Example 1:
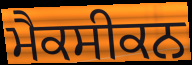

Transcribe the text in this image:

ਮੈਕਸੀਕਨ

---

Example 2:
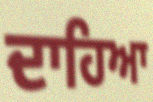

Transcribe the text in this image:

ਦਾਹਿਆ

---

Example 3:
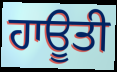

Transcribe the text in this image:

ਹਾਊਤੀ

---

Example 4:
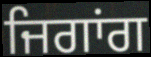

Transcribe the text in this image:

ਜਿਗਾਂਗ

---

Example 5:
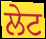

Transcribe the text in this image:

ਲੇਟ